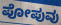
ಪೋಪುವು